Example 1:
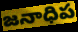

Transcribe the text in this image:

జనాధిప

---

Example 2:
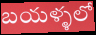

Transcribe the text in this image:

బయళ్ళలో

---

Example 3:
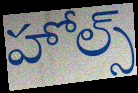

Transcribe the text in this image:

హోల్స్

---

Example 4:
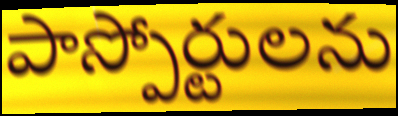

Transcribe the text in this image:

పాస్పోర్టులను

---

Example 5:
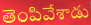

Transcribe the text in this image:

తెంపివేశాడు